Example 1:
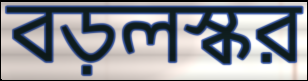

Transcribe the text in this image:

বড়লস্কর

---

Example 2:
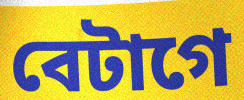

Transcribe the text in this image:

বেটাগে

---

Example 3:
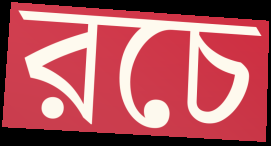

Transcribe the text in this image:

রচে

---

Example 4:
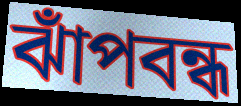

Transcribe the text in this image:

ঝাঁপবন্ধ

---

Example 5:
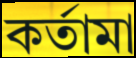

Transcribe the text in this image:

কর্তামা